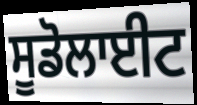
ਸੂਡੋਲਾਈਟ